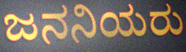
ಜನನಿಯರು